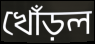
খোঁড়ল